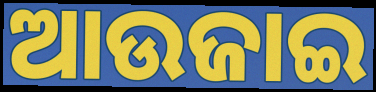
ଆଉଜାଇ